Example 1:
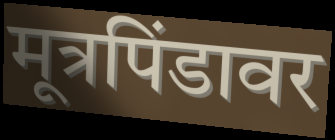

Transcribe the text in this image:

मूत्रपिंडावर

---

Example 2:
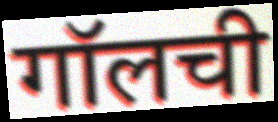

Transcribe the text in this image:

गॉलची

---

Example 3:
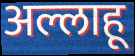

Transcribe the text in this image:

अल्लाहू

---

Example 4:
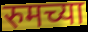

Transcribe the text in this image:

रुमच्या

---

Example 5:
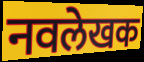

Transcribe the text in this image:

नवलेखक